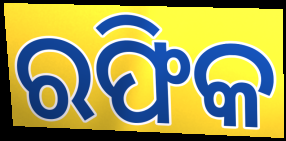
ରଫିକ